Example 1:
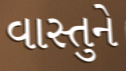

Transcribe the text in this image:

વાસ્તુને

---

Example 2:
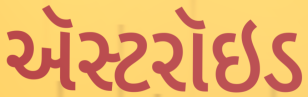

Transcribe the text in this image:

ઍસ્ટરૉઇડ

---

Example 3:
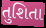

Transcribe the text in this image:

તુશિતા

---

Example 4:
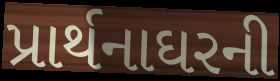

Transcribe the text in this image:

પ્રાર્થનાઘરની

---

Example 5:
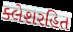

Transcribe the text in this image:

ક્લેશરહિત